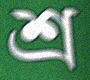
শ্র